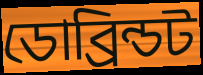
ডোব্রিন্ডট